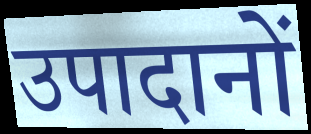
उपादानों